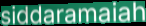
siddaramaiah